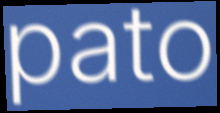
pato